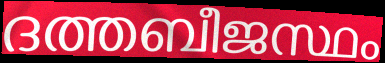
ദത്തബീജസ്ഥം